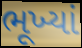
ભૂખ્યાં